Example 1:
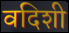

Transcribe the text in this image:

वदिशी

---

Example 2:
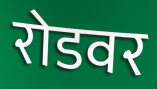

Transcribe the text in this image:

रोडवर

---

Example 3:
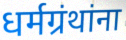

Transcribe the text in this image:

धर्मग्रंथांना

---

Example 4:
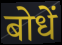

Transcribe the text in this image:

बोधें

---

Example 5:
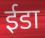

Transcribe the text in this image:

ईडा